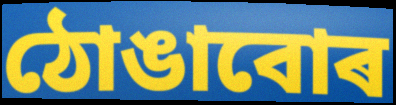
ঠোঙাবোৰ